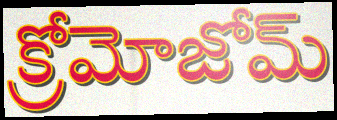
క్రోమోజోమ్